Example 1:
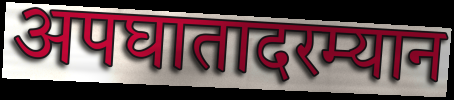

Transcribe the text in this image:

अपघातादरम्यान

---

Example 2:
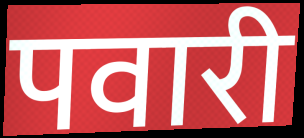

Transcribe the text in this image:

पवारी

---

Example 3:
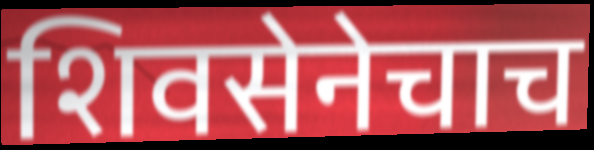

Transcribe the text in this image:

शिवसेनेचाच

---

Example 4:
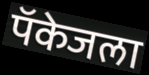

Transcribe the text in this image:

पॅकेजला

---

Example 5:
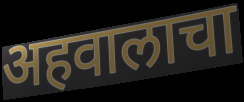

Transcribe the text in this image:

अहवालाचा